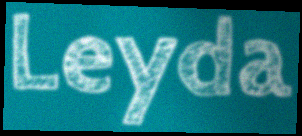
Leyda